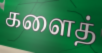
களைத்